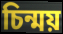
চিন্ময়